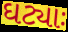
ઘટ્યાઃ